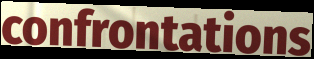
confrontations